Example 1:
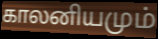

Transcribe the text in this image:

காலனியமும்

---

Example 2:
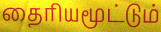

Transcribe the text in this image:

தைரியமூட்டும்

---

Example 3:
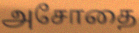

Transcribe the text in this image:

அசோதை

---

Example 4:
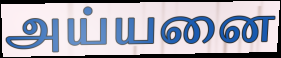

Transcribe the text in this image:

அய்யனை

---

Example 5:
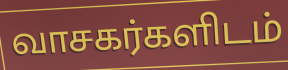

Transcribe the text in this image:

வாசகர்களிடம்